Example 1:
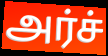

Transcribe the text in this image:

அர்ச்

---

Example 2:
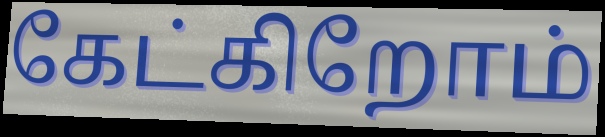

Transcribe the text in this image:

கேட்கிறோம்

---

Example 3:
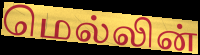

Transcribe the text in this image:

மெல்லின்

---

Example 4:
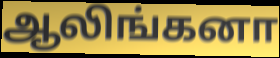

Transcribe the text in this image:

ஆலிங்கனா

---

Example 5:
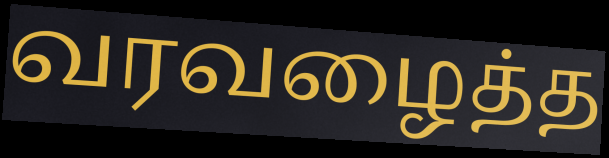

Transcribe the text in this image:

வரவழைத்த